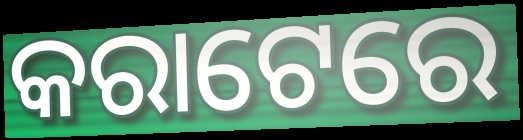
କରାଟେରେ